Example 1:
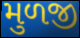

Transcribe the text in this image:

મુળજી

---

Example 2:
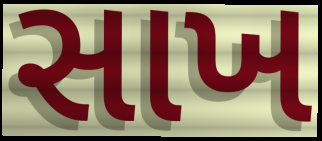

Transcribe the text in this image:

સાખ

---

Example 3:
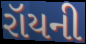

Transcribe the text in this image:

રૉયની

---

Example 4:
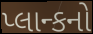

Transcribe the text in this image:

પ્લાન્કનો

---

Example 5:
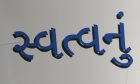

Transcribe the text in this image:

સ્વત્વનું